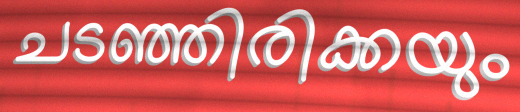
ചടഞ്ഞിരിക്കയും